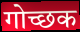
गोच्छक